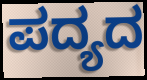
ಪದ್ಯದ